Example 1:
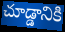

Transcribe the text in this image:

చూడ్డానికి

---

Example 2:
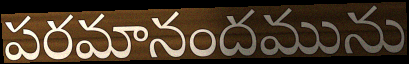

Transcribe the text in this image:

పరమానందమును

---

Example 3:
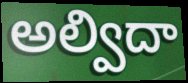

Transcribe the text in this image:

అల్విదా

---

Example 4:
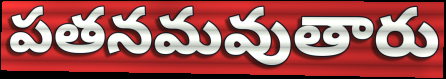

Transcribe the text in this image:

పతనమవుతారు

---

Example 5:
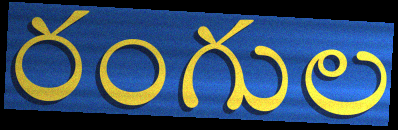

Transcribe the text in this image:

రంగుల